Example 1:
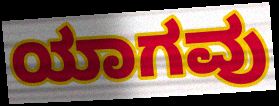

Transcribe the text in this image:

ಯಾಗವು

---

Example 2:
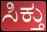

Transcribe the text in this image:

ಸಿಕ್ತು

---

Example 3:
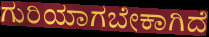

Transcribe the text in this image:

ಗುರಿಯಾಗಬೇಕಾಗಿದೆ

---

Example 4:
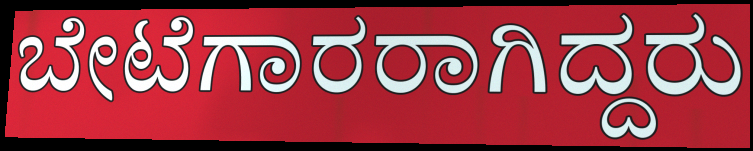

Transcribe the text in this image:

ಬೇಟೆಗಾರರಾಗಿದ್ದರು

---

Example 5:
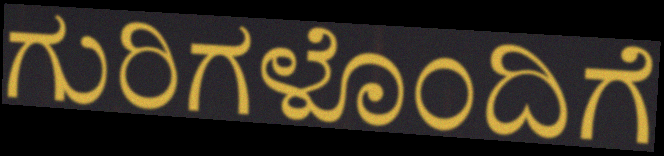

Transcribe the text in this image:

ಗುರಿಗಳೊಂದಿಗೆ